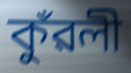
কুঁৱলী